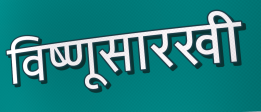
विष्णूसारखी